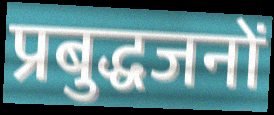
प्रबुद्धजनों